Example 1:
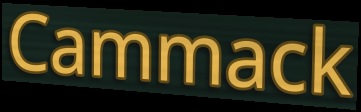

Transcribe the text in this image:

Cammack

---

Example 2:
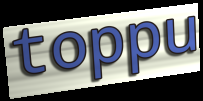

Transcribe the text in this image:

toppu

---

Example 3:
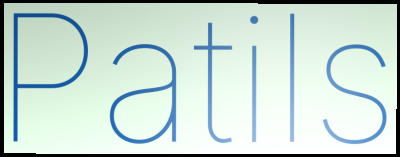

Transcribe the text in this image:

Patils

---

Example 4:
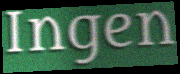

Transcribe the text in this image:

Ingen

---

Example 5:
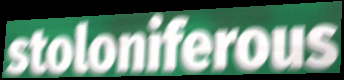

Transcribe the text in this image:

stoloniferous